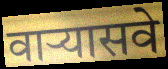
वाऱ्यासवे